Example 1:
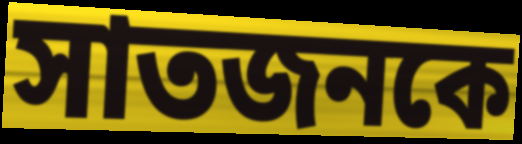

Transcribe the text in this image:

সাতজনকে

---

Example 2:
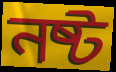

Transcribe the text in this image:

নষ্ট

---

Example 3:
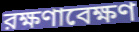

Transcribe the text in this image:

রক্ষণাবেক্ষণ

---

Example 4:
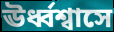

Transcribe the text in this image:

ঊর্ধ্বশ্বাসে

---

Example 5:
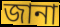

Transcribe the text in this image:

জানা